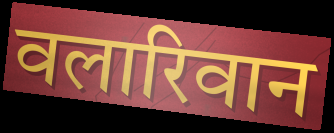
वलारिवान